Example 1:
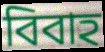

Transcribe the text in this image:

বিবাহ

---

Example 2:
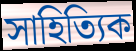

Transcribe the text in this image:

সাহিত্যিক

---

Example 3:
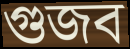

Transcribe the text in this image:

গুজব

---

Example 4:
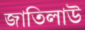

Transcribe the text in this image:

জাতিলাউ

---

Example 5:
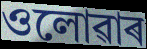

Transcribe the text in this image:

ওলোৱাৰ